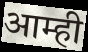
आम्‍ही